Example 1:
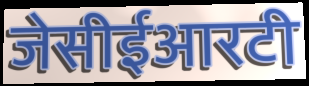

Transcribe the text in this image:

जेसीईआरटी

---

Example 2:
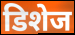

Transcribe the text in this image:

डिशेज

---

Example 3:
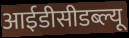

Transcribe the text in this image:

आईडीसीडब्ल्यू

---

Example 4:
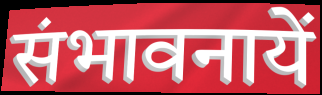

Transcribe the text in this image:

संभावनायें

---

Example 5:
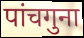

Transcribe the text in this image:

पांचगुना